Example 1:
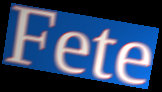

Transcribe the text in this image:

Fete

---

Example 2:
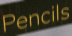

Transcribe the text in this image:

Pencils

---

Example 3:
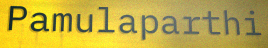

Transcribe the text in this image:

Pamulaparthi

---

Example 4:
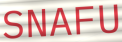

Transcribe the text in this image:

SNAFU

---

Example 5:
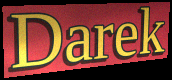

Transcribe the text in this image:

Darek